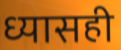
ध्यासही